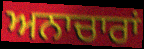
ਅਨਾਚਾਰਾਂ